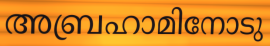
അബ്രഹാമിനോടു